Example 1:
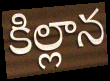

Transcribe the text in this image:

కిల్లాన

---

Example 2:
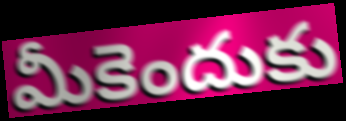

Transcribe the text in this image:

మీకెందుకు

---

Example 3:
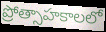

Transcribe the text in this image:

ప్రోత్సాహకాలలో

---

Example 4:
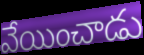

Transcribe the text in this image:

వేయించాడు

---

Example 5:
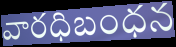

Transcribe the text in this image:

వారధిబంధన